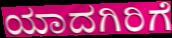
ಯಾದಗಿರಿಗೆ